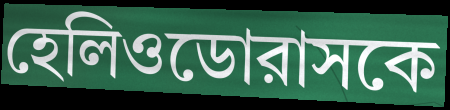
হেলিওডোরাসকে